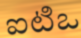
ఐటిఒ